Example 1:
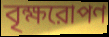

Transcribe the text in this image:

বৃক্ষরোপণ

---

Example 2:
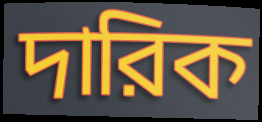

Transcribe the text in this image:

দারিক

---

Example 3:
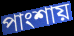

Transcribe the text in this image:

পাংশায়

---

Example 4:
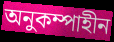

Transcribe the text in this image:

অনুকম্পাহীন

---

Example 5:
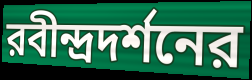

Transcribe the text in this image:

রবীন্দ্রদর্শনের